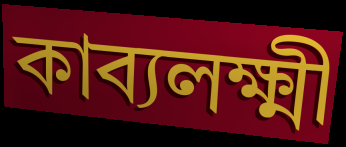
কাব্যলক্ষ্মী